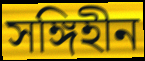
সঙ্গিহীন